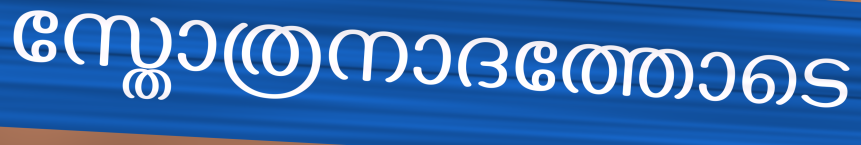
സ്തോത്രനാദത്തോടെ